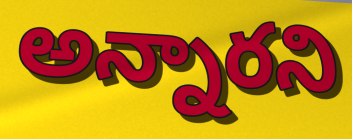
అన్నారని